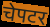
चेपटर